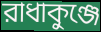
রাধাকুঞ্জে